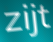
zijt